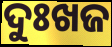
ଦୁଃଖଜ